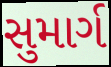
સુમાર્ગ